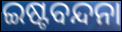
ଇଷ୍ଟବନ୍ଦନା